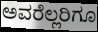
ಅವರೆಲ್ಲರಿಗೂ